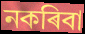
নকৰিবা